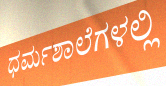
ಧರ್ಮಶಾಲೆಗಳಲ್ಲಿ